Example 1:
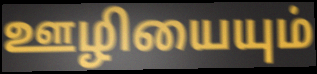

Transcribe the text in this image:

ஊழியையும்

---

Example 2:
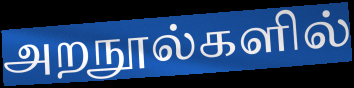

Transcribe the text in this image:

அறநூல்களில்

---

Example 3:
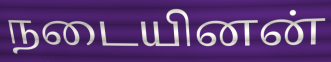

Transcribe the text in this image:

நடையினன்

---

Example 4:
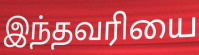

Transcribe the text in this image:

இந்தவரியை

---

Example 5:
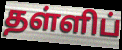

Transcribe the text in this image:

தள்ளிப்